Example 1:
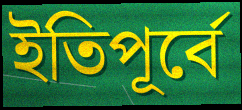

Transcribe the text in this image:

ইতিপূৰ্বে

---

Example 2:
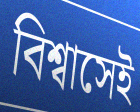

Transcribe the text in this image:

বিশ্বাসেই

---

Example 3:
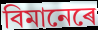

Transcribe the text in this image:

বিমানেৰে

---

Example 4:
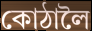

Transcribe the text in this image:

কোঠালৈ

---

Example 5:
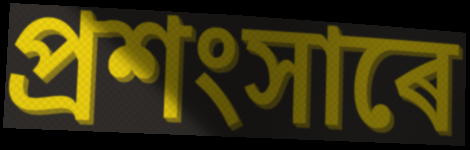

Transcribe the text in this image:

প্ৰশংসাৰে